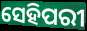
ସେହିପରୀ